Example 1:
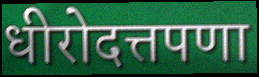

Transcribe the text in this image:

धीरोदत्तपणा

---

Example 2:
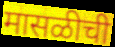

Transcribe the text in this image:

मासळीची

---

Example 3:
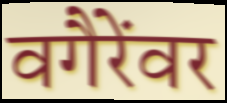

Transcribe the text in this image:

वगैरेंवर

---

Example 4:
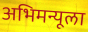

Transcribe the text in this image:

अभिमन्यूला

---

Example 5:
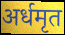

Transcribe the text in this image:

अर्धमृत